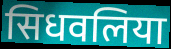
सिधवलिया